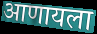
आणायला